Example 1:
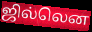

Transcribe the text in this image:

ஜில்லென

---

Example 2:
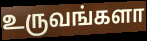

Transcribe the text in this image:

உருவங்களா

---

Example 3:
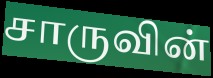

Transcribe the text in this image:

சாருவின்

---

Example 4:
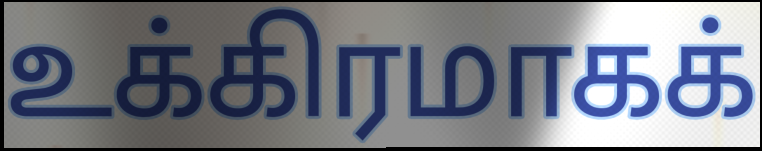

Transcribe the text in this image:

உக்கிரமாகக்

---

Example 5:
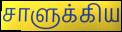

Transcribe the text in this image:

சாளுக்கிய